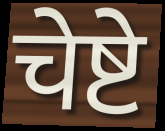
चेष्टे